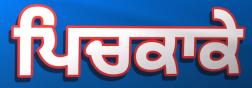
ਪਿਚਕਾਕੇ